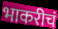
भाकरीचं